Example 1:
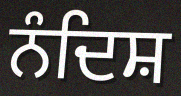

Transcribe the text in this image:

ਨੰਦਿਸ਼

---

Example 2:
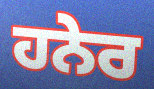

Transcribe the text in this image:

ਹਨੇਰ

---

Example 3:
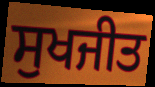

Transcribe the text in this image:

ਸੁਖਜੀਤ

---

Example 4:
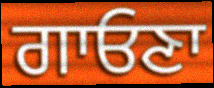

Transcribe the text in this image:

ਗਾਓਣਾ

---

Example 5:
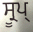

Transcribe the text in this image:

ਸ੍ਰੂਪ੍